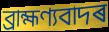
ব্ৰাহ্মণ্যবাদৰ